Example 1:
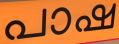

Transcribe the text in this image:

പാഷ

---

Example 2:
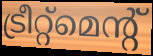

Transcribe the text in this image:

ട്രീറ്റ്മെന്റ്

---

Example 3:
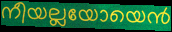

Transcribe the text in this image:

നീയല്ലയോയെൻ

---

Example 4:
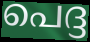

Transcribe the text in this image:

പെദ്ദ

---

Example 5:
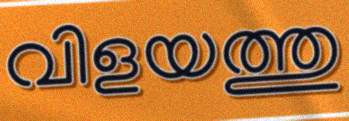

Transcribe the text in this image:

വിളയത്തു